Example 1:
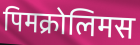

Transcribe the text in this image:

पिमक्रोलिमस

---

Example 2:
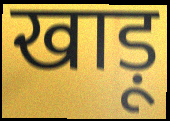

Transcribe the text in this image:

खाड़ू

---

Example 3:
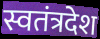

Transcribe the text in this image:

स्वतंत्रदेश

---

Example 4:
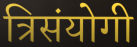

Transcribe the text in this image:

त्रिसंयोगी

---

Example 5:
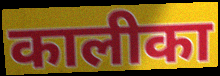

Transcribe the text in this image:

कालीका